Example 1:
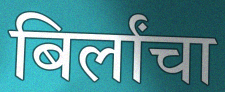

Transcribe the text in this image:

बिर्लांचा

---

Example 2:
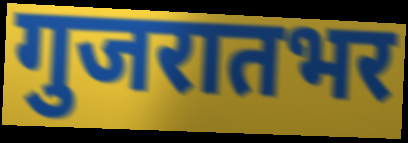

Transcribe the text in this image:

गुजरातभर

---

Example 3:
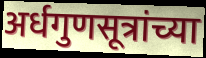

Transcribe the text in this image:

अर्धगुणसूत्रांच्या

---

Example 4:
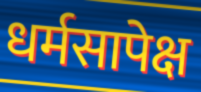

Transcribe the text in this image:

धर्मसापेक्ष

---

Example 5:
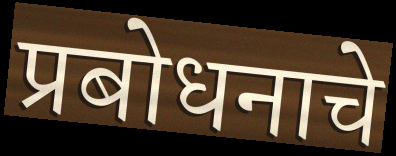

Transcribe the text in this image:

प्रबोधनाचे